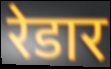
रेडार